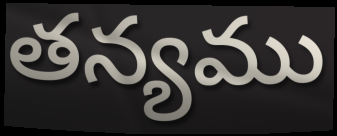
తన్యము